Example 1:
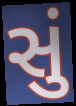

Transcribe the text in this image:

સું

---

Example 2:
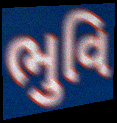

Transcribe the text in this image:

ભુવિ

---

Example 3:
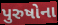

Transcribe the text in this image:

પુરુષોના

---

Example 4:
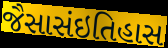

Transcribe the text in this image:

જૈસાસંઇતિહાસ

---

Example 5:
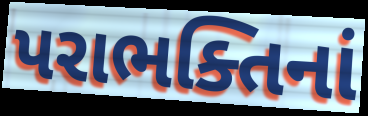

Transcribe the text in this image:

પરાભક્તિનાં